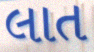
લાત